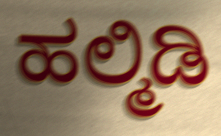
ಹಲ್ಮಿಡಿ